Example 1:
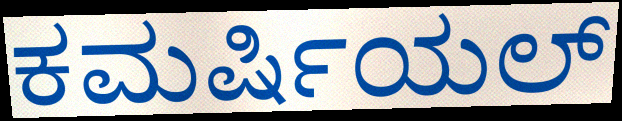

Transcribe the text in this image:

ಕಮರ್ಷಿಯಲ್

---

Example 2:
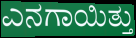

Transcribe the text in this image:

ಎನಗಾಯಿತ್ತು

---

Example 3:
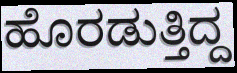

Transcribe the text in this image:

ಹೊರಡುತ್ತಿದ್ದ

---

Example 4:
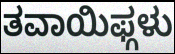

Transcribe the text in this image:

ತವಾಯಿಫ್ಗಳು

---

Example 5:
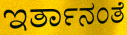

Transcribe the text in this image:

ಇರ್ತಾನಂತೆ